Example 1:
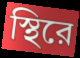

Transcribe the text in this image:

স্থিরে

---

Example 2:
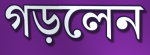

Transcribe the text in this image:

গড়লেন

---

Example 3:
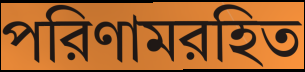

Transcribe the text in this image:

পরিণামরহিত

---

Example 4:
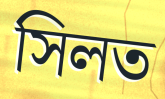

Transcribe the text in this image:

সিলত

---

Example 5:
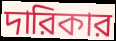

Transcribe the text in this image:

দারিকার